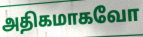
அதிகமாகவோ